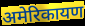
अमेरिकायण